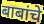
बाबांचे